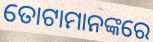
ତୋଟାମାନଙ୍କରେ